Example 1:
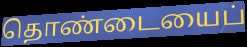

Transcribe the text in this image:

தொண்டையைப்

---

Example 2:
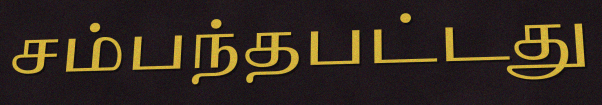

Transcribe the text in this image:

சம்பந்தபட்டது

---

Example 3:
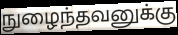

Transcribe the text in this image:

நுழைந்தவனுக்கு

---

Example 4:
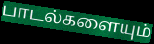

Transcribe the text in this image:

பாடல்களையும்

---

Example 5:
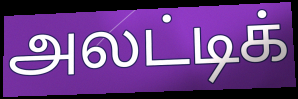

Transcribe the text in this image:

அலட்டிக்